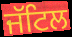
ਜੱਟਿਲ